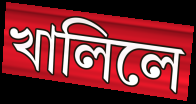
খালিলে